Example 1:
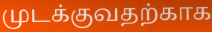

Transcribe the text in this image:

முடக்குவதற்காக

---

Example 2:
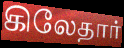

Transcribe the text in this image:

கிலேதார்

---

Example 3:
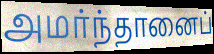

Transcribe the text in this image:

அமர்ந்தானைப்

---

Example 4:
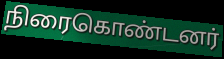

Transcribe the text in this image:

நிரைகொண்டனர்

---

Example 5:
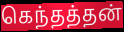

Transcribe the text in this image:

கெந்தத்தன்